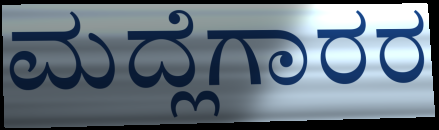
ಮದ್ಲೆಗಾರರ